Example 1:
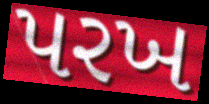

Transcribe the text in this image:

પરખ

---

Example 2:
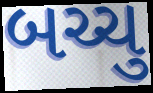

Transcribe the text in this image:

બચ્ચુ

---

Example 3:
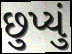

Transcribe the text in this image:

છુપ્યું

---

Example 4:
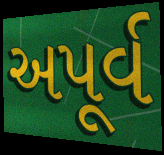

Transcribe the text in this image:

અપૂર્વ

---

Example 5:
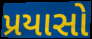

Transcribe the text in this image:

પ્રયાસો